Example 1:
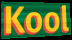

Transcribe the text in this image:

Kool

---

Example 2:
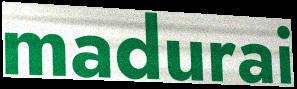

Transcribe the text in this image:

madurai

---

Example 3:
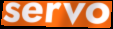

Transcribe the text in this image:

servo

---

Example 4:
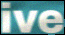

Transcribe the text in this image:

ive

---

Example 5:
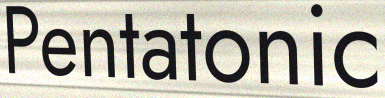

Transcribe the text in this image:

Pentatonic